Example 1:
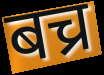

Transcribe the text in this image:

बच्र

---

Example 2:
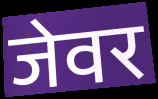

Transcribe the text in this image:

जेवर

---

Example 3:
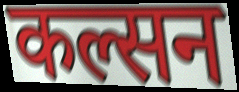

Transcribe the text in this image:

कल्सन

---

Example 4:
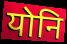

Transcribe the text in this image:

योनि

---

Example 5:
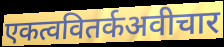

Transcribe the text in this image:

एकत्ववितर्कअवीचार